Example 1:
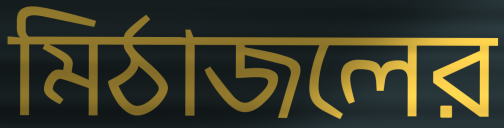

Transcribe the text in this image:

মিঠাজলের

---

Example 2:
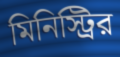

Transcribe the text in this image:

মিনিস্ট্রির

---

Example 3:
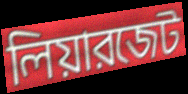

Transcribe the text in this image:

লিয়ারজেট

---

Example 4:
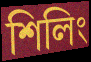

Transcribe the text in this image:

শিলিং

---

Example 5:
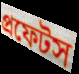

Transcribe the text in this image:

প্রফেটস